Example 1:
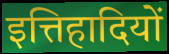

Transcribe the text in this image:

इत्तिहादियों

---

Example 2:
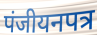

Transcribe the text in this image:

पंजीयनपत्र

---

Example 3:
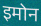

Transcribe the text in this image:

इमोन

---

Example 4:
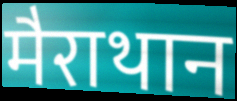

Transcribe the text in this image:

मैराथान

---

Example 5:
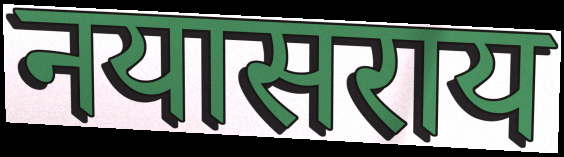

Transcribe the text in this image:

नयासराय